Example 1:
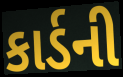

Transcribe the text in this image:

કાર્ડની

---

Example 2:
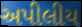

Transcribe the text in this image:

અપીલીય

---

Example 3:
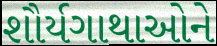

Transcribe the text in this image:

શૌર્યગાથાઓને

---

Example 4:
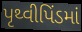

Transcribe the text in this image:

પૃથ્વીપિંડમાં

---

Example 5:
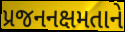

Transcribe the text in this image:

પ્રજનનક્ષમતાને